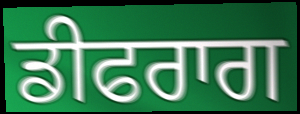
ਡੀਫਰਾਗ